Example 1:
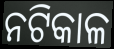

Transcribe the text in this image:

ନଟିକାଳ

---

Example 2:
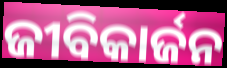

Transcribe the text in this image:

ଜୀବିକାର୍ଜନ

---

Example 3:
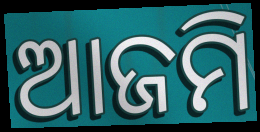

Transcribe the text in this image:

ଆଜମି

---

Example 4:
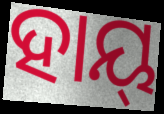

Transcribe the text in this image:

ହାୟ୍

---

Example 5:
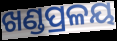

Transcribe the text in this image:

ଖଣ୍ଡପ୍ରଳୟ